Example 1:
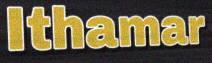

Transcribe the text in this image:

Ithamar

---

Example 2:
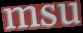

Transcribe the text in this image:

msu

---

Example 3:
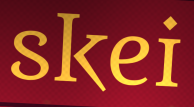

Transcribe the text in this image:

skei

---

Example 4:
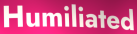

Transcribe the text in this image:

Humiliated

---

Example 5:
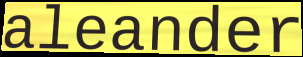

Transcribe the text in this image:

aleander